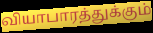
வியாபாரத்துக்கும்